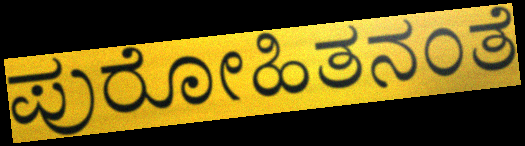
ಪುರೋಹಿತನಂತೆ